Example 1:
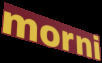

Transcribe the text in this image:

morni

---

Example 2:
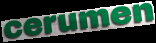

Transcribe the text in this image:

cerumen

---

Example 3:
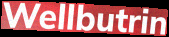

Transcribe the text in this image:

Wellbutrin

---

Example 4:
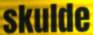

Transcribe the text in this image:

skulde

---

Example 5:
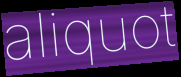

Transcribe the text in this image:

aliquot